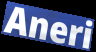
Aneri